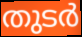
തുടർ